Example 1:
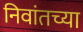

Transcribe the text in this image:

निवांतच्या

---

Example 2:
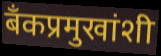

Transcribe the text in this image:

बँकप्रमुखांशी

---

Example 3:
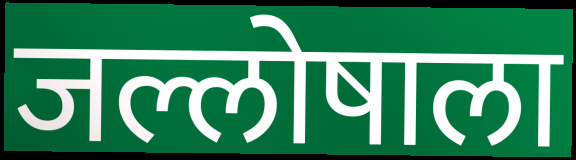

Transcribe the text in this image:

जल्लोषाला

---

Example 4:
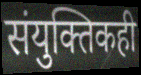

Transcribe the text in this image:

संयुक्तिकही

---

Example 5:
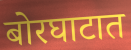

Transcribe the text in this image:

बोरघाटात